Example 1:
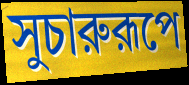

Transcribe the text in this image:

সুচারুরূপে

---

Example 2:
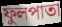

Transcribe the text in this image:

ফুলপাতা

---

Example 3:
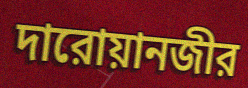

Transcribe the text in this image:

দারোয়ানজীর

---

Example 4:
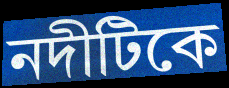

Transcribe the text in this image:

নদীটিকে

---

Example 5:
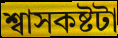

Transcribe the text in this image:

শ্বাসকষ্টটা